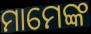
ମାମେଙ୍କ